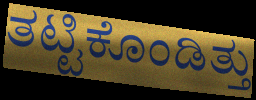
ತಟ್ಟಿಕೊಂಡಿತ್ತು